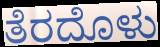
ತೆರದೊಳು